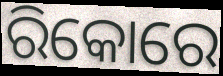
ରିକୋରେ